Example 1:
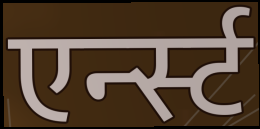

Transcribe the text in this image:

एर्न्स्ट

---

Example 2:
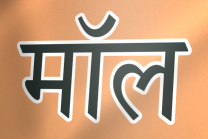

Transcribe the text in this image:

मॉल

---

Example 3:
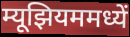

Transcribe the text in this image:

म्यूझियममध्यें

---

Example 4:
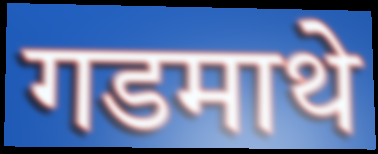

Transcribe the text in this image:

गडमाथे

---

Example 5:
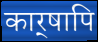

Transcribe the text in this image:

कार्षापि